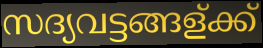
സദ്യവട്ടങ്ങള്ക്ക്